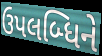
ઉપલબ્ધિને